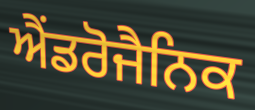
ਐਂਡਰੋਜੈਨਿਕ